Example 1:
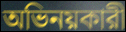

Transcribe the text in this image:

অভিনয়কারী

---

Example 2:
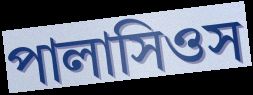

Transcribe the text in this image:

পালাসিওস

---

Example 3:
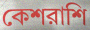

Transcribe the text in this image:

কেশরাশি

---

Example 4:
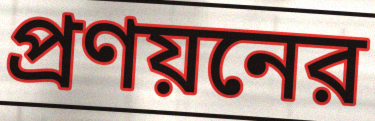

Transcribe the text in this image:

প্রণয়নের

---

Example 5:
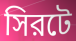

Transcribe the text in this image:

সিরটে